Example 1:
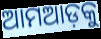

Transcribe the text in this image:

ଆମଆଡ଼କୁ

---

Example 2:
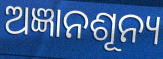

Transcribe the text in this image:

ଅଜ୍ଞାନଶୂନ୍ୟ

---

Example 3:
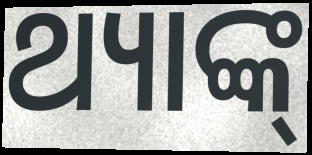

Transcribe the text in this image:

ଥ୍ୟାଙ୍କ୍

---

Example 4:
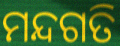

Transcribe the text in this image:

ମନ୍ଦଗତି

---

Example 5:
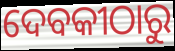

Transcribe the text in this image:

ଦେବକୀଠାରୁ